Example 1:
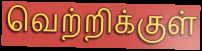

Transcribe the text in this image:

வெற்றிக்குள்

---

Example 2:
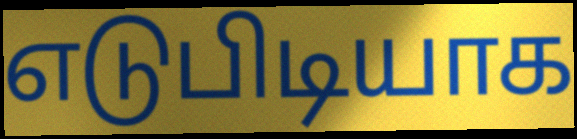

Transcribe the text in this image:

எடுபிடியாக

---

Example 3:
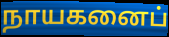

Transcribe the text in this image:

நாயகனைப்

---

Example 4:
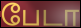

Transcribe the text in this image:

பேடா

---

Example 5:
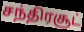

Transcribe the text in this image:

சந்திரசூட்